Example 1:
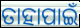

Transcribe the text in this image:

ତାହାପାଇଁ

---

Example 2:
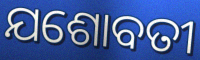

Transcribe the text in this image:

ଯଶୋବତୀ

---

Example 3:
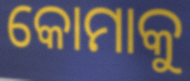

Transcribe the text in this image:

କୋମାକୁ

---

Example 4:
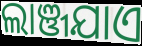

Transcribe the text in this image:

ଲାଞ୍ଜଯାଏ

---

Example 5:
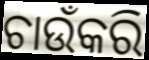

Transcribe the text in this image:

ଚାଉଁକରି